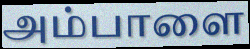
அம்பாளை